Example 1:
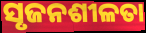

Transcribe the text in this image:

ସୃଜନଶୀଳତା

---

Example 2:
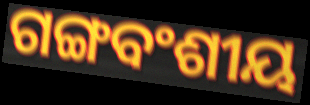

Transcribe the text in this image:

ଗଙ୍ଗବଂଶୀୟ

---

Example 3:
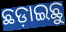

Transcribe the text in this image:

ଛଡ଼ାଇଛୁ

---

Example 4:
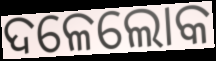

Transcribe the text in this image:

ଦଳେଲୋକ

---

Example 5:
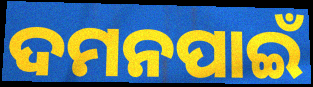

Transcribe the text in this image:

ଦମନପାଇଁ